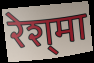
रेश्मा